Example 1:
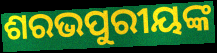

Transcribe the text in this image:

ଶରଭପୁରୀୟଙ୍କ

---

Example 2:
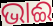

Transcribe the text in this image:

ଭାଈ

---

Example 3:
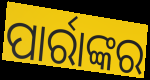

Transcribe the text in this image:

ପାର୍ରାଙ୍କର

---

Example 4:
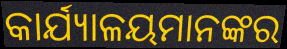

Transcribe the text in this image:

କାର୍ଯ୍ୟାଳୟମାନଙ୍କର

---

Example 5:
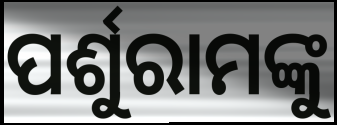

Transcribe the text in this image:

ପର୍ଶୁରାମଙ୍କୁ